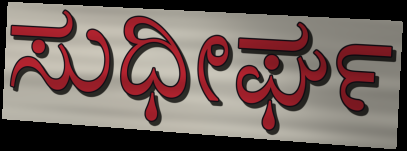
ಸುಧೀರ್ಘ